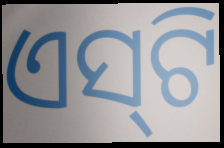
ଏସ୍‌ଟି